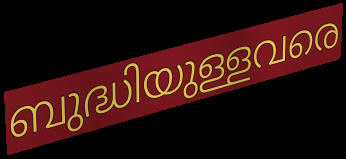
ബുദ്ധിയുള്ളവരെ